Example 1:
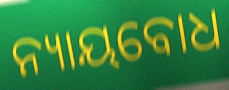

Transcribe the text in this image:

ନ୍ୟାୟବୋଧ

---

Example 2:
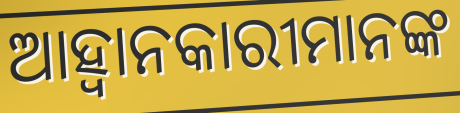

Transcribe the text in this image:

ଆହ୍ଵାନକାରୀମାନଙ୍କ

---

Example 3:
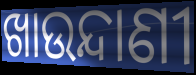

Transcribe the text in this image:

ଖାଉନ୍ଦାଣୀ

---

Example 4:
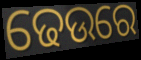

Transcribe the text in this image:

ଢେଉରେ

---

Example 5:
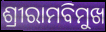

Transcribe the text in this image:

ଶ୍ରୀରାମବିମୁଖ